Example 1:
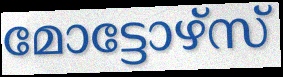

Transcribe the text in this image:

മോട്ടോഴ്സ്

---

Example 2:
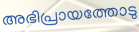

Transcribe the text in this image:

അഭിപ്രായത്തോടു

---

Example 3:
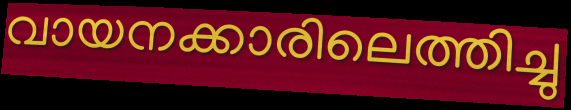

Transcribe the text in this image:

വായനക്കാരിലെത്തിച്ചു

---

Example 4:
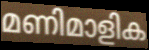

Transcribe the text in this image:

മണിമാളിക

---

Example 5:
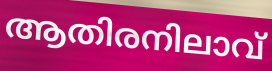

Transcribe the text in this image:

ആതിരനിലാവ്